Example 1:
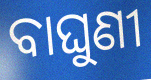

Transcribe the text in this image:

ବାଘୁଣୀ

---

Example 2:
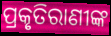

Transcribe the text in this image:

ପ୍ରକୃତିରାଣୀଙ୍କ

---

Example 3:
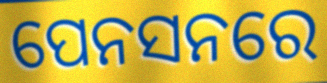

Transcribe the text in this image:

ପେନସନରେ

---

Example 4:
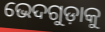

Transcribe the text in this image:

ଭେଦଗୁଡ଼ାକୁ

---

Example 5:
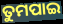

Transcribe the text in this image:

ତୁମପାଇ